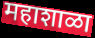
महाशाळा